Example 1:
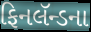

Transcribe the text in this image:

ફિનલૅન્ડના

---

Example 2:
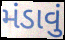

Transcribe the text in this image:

મંડાવું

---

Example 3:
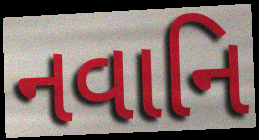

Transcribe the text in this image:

નવાનિ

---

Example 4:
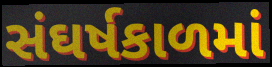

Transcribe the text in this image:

સંઘર્ષકાળમાં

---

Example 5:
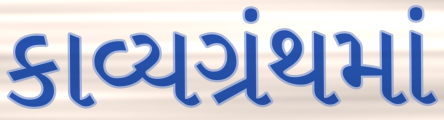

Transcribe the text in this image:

કાવ્યગ્રંથમાં